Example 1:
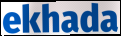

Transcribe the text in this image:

ekhada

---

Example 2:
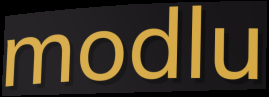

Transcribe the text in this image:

modlu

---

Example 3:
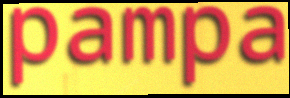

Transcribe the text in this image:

pampa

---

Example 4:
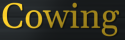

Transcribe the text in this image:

Cowing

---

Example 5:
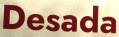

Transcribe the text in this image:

Desada